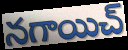
నగాయిచ్